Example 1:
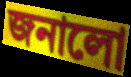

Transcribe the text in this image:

জনালো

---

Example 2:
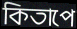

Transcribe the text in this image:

কিতাপে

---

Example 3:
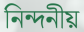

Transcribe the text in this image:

নিন্দনীয়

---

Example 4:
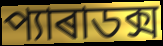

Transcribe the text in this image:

প্যাৰাডক্স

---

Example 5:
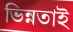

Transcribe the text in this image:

ভিন্নতাই